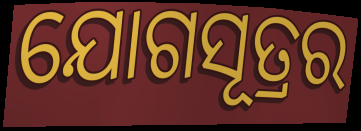
ଯୋଗସୂତ୍ରର